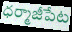
ధర్మాజీపేట